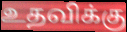
உதவிக்கு